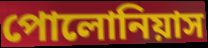
পোলোনিয়াস